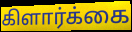
கிளார்க்கை